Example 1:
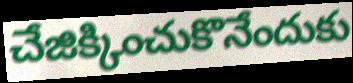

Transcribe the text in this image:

చేజిక్కించుకొనేందుకు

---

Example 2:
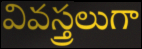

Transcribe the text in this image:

వివస్త్రలుగా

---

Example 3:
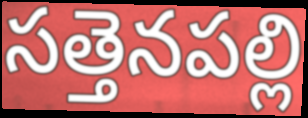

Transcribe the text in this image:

సత్తెనపల్లి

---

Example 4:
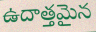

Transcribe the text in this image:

ఉదాత్తమైన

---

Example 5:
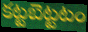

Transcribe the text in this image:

కట్టబెట్టటం